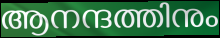
ആനന്ദത്തിനും